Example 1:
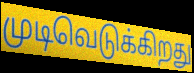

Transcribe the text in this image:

முடிவெடுக்கிறது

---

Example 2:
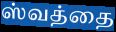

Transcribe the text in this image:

ஸ்வத்தை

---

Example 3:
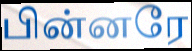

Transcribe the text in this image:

பின்னரே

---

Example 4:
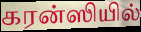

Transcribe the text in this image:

கரன்ஸியில்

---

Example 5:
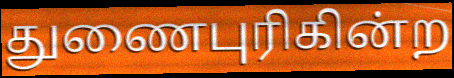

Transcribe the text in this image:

துணைபுரிகின்ற